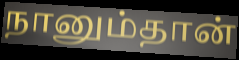
நானும்தான்